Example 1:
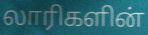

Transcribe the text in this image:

லாரிகளின்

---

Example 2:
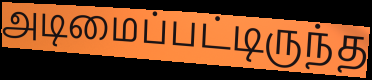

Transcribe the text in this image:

அடிமைப்பட்டிருந்த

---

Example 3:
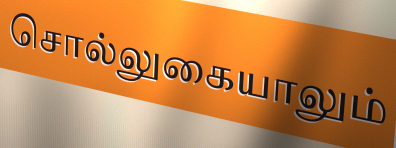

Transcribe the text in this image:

சொல்லுகையாலும்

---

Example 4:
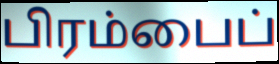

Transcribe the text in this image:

பிரம்பைப்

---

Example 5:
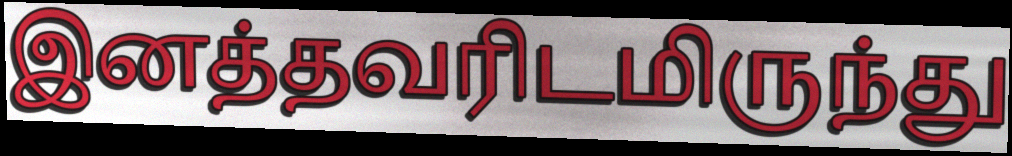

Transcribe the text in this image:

இனத்தவரிடமிருந்து